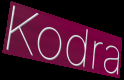
Kodra